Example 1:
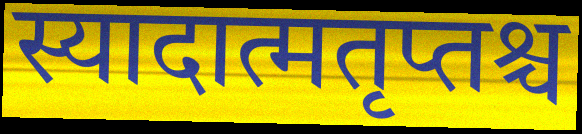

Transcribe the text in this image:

स्यादात्मतृप्तश्च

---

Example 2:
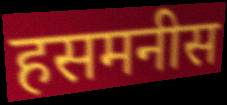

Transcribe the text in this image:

हसमनीस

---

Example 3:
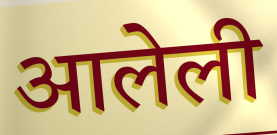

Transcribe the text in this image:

आलेली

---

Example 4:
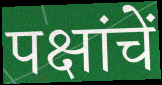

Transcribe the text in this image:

पक्षांचें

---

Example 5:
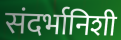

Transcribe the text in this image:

संदर्भानिशी